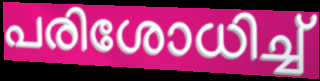
പരിശോധിച്ച്